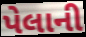
પેલાની